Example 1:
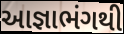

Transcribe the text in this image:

આજ્ઞાભંગથી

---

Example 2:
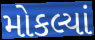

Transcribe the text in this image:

મોકલ્યાં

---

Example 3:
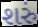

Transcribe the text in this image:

શરું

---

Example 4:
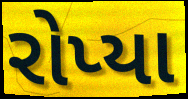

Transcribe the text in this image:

રોપ્યા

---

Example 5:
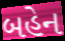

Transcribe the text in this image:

બહેન